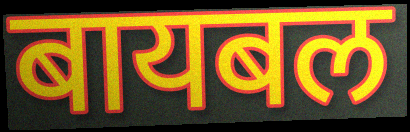
बायबल